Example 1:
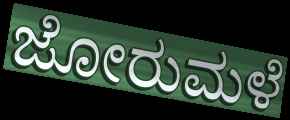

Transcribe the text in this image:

ಜೋರುಮಳೆ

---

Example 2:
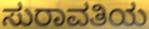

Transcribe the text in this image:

ಸುರಾವತಿಯ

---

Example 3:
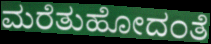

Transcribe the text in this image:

ಮರೆತುಹೋದಂತೆ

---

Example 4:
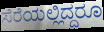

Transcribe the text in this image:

ಸೆರೆಯಲ್ಲಿದ್ದರೂ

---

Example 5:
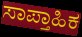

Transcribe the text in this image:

ಸಾಪ್ತಾಹಿಕ